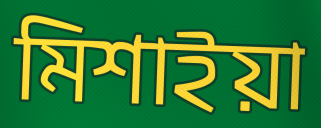
মিশাইয়া